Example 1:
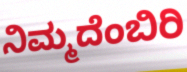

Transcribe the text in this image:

ನಿಮ್ಮದೆಂಬಿರಿ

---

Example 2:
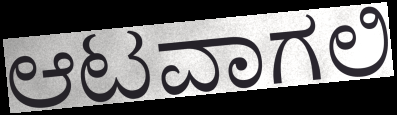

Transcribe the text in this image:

ಆಟವಾಗಲಿ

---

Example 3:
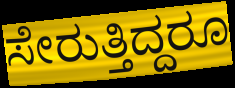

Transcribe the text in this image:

ಸೇರುತ್ತಿದ್ದರೂ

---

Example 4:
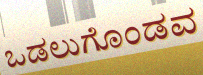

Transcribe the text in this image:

ಒಡಲುಗೊಂಡವ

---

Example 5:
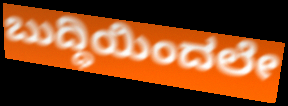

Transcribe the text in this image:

ಬುದ್ಧಿಯಿಂದಲೇ